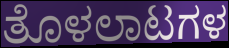
ತೊಳಲಾಟಗಳ